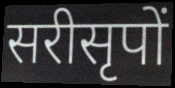
सरीसृपों